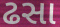
ઢસા